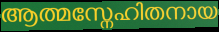
ആത്മസ്നേഹിതനായ